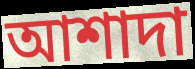
আশাদা